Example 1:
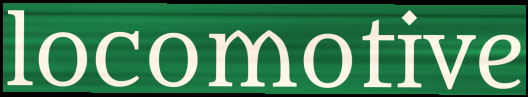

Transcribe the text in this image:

locomotive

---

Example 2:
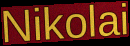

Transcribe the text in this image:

Nikolai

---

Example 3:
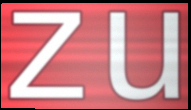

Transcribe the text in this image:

zu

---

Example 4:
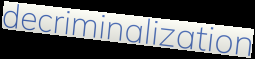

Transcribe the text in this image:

decriminalization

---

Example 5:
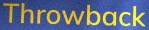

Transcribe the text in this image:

Throwback